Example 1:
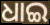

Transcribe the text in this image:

ଧାଇ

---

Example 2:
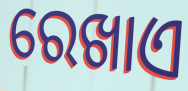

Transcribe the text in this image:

ରେଖାଏ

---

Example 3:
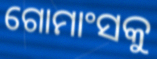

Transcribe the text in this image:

ଗୋମାଂସକୁ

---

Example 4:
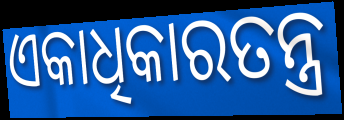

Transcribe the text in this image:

ଏକାଧିକାରତନ୍ତ୍ର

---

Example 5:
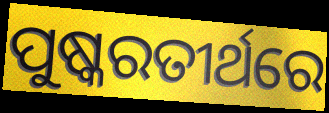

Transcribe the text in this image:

ପୁଷ୍କରତୀର୍ଥରେ